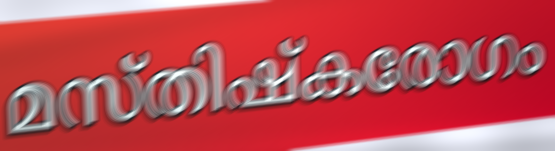
മസ്തിഷ്കരോഗം